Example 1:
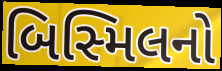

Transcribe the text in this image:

બિસ્મિલનો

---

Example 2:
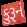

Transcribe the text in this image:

કુરૂનં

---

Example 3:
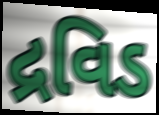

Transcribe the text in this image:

દ્રવિડ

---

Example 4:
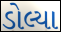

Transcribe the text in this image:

ડોલ્યા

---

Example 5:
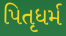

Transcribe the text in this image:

પિતૃધર્મ